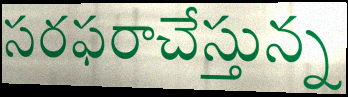
సరఫరాచేస్తున్న